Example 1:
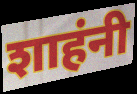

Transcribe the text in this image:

शाहंनी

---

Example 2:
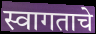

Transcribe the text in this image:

स्वागताचे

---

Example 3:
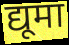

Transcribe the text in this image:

द्यूमा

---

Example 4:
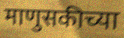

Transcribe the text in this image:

माणुसकीच्या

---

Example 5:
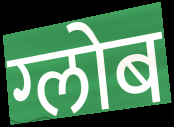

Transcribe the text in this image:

ग्लोब